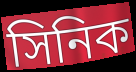
সিনিক